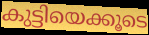
കുട്ടിയെക്കൂടെ